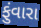
ફુંવારા